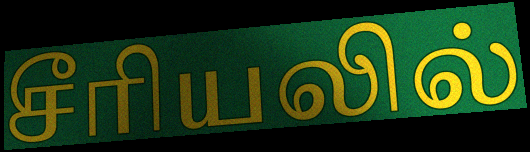
சீரியலில்